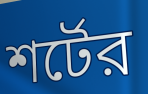
শর্টের